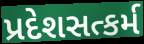
પ્રદેશસત્કર્મ